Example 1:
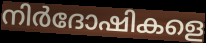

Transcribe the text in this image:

നിർദോഷികളെ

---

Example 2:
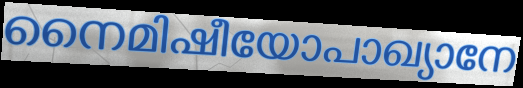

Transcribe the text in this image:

നൈമിഷീയോപാഖ്യാനേ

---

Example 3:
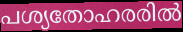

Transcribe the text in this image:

പശ്യതോഹരരിൽ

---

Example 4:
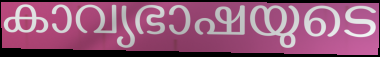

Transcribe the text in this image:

കാവ്യഭാഷയുടെ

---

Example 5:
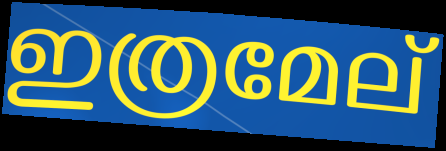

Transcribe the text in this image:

ഇത്രമേല്